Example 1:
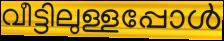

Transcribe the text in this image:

വീട്ടിലുള്ളപ്പോൾ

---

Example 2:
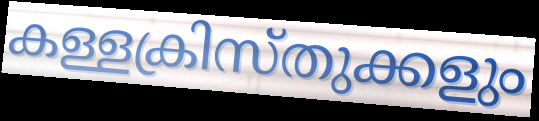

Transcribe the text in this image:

കള്ളക്രിസ്തുക്കളും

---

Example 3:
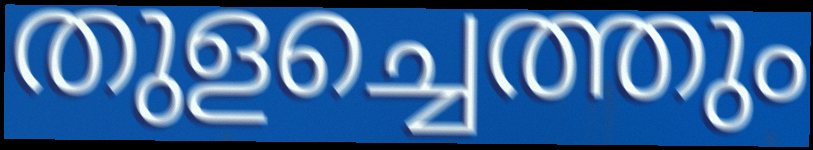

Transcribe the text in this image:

തുളച്ചെത്തും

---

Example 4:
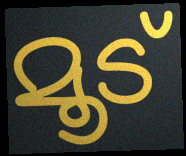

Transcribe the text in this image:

മൂട്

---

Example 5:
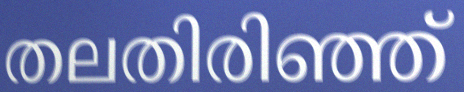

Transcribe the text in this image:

തലതിരിഞ്ഞ്